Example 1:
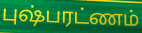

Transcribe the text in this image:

புஷ்பரட்ணம்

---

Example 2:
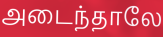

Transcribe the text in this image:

அடைந்தாலே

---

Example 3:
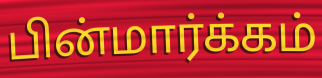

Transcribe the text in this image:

பின்மார்க்கம்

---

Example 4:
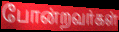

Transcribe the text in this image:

போன்றவர்கள்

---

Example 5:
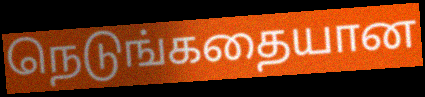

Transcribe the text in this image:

நெடுங்கதையான